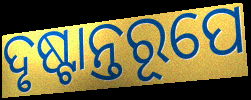
ଦୃଷ୍ଟାନ୍ତରୂପେ